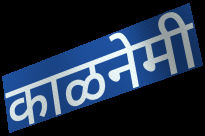
काळनेमी